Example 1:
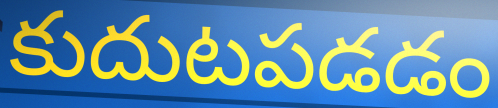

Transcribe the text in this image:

కుదుటపడడం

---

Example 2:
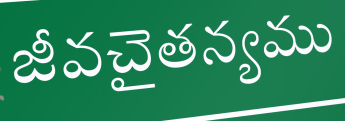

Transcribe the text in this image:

జీవచైతన్యము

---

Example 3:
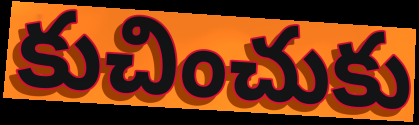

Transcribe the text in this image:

కుచించుకు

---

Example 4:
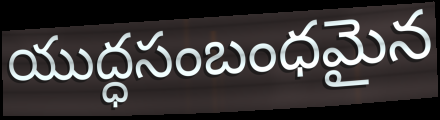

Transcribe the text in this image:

యుద్ధసంబంధమైన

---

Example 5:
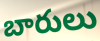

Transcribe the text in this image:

బారులు